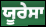
ਯੂਰੇਸਾ